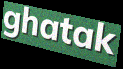
ghatak